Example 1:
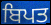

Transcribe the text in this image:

ਬਿਪਤ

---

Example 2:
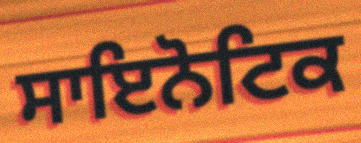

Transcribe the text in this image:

ਸਾਇਨੋਟਿਕ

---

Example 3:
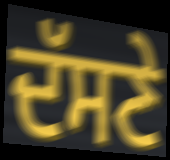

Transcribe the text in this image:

ਦੱਸਣੇ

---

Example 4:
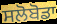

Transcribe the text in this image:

ਸਲੋਬੋਡਾ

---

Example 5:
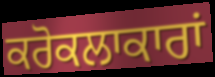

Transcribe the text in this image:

ਕਰੋਕਲਾਕਾਰਾਂ